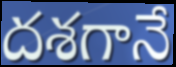
దశగానే